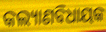
କଲ୍ୟାଣବିଧାୟକ